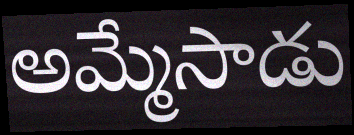
అమ్మేసాడు